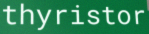
thyristor